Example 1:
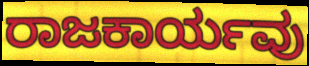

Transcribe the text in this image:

ರಾಜಕಾರ್ಯವು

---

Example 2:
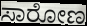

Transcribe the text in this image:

ಸಾರೋಣ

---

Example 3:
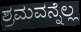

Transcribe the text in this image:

ಶ್ರಮವನ್ನೆಲ್ಲ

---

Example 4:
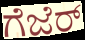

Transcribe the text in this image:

ಗೆಜೆರ್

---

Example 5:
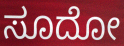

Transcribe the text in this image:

ಸೂದೋ